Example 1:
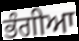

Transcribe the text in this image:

ਭੰਗੀਆ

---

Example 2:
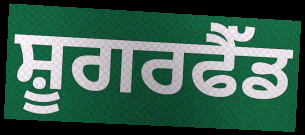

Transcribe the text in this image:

ਸ਼ੂਗਰਫੈੱਡ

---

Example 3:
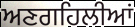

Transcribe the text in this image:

ਅਣਗਹਿਲੀਆਂ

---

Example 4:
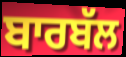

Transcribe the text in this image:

ਬਾਰਬੱਲ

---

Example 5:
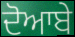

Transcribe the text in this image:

ਦੋਆਬੇ